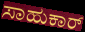
ಸಾಹುಕಾರ್